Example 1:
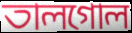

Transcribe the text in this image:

তালগোল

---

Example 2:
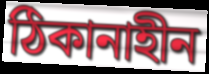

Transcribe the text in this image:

ঠিকানাহীন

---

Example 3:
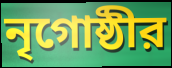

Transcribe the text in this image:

নৃগোষ্ঠীর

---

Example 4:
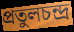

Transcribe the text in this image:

প্রতুলচন্দ্র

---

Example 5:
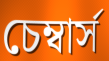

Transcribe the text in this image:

চেম্বার্স